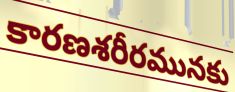
కారణశరీరమునకు